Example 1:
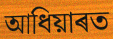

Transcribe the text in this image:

আধিয়াৰত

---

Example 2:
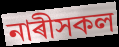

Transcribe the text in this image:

নাৰীসকল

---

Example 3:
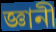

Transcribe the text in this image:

জ্ঞানী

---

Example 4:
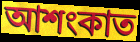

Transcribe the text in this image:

আশংকাত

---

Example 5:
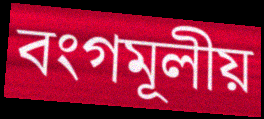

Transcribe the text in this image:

বংগমূলীয়